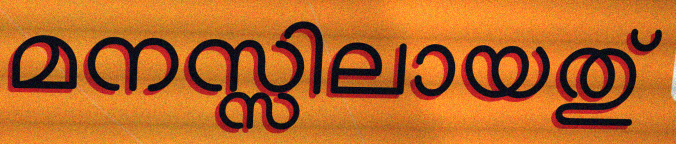
മനസ്സിലായതു്